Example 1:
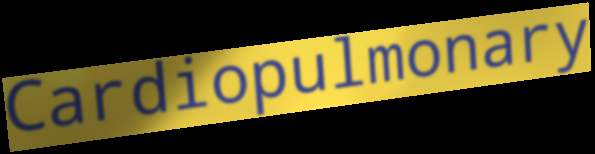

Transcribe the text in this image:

Cardiopulmonary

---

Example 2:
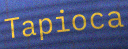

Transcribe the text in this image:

Tapioca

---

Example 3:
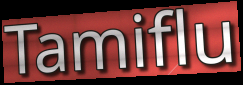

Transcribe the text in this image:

Tamiflu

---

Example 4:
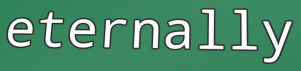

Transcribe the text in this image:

eternally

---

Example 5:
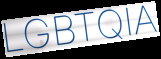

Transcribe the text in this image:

LGBTQIA